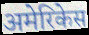
अमेरिकेस